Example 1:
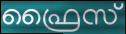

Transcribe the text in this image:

ഫ്രൈസ്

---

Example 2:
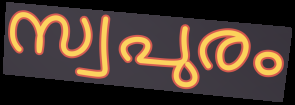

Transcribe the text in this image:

സ്വപുരം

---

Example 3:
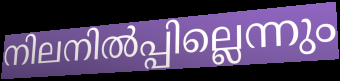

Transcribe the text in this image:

നിലനിൽപ്പില്ലെന്നും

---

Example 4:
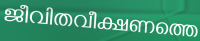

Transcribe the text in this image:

ജീവിതവീക്ഷണത്തെ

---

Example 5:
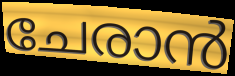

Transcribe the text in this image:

ചേരാൻ